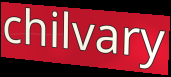
chilvary